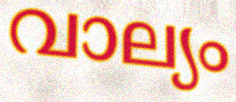
വാല്യം